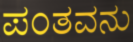
ಪಂತವನು